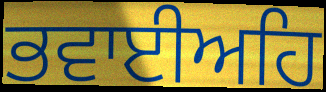
ਭਵਾਈਅਹਿ